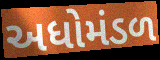
અધોમંડળ